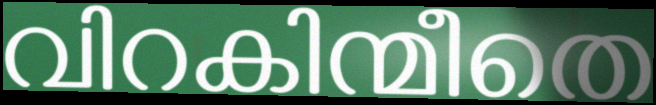
വിറകിന്മീതെ